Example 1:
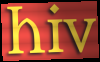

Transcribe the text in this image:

hiv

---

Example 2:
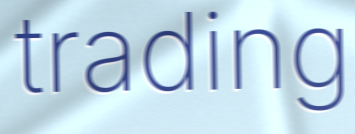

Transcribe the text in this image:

trading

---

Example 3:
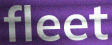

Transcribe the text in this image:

fleet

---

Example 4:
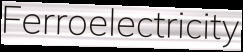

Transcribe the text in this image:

Ferroelectricity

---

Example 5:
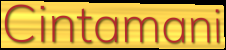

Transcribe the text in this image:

Cintamani